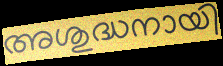
അശുദ്ധനായി